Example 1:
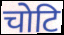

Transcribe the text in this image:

चोटि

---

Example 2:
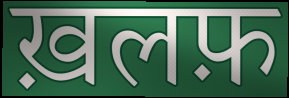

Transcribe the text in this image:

ख़लफ़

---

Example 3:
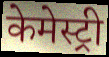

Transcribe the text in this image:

केमेस्ट्री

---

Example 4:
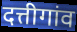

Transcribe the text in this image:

दत्तीगांव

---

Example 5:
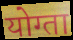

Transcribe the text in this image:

योग्ता